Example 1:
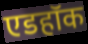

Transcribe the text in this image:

एडहॉक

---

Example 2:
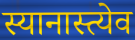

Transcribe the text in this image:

स्यानास्त्येव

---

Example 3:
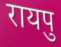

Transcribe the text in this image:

रायपु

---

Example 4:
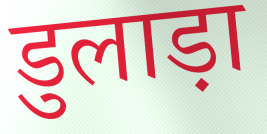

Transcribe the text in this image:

डुलाड़ा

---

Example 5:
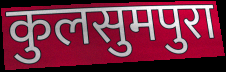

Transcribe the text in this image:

कुलसुमपुरा